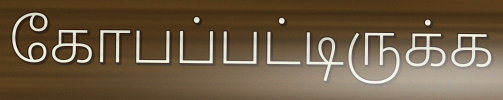
கோபப்பட்டிருக்க